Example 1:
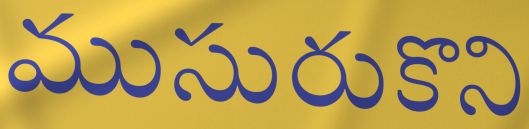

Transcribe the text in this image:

ముసురుకొని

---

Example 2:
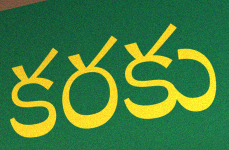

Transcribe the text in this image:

కరకు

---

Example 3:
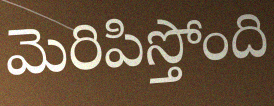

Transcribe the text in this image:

మెరిపిస్తోంది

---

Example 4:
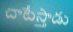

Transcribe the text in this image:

చాటేస్తాడు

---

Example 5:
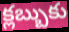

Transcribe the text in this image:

క్లబ్బుకు